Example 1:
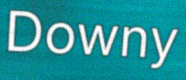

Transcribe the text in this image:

Downy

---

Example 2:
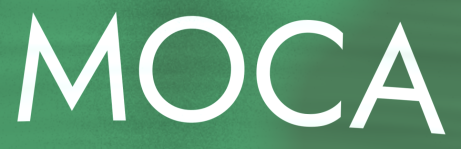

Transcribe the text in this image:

MOCA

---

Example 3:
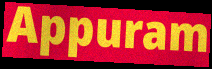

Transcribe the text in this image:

Appuram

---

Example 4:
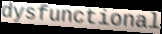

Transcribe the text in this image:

dysfunctional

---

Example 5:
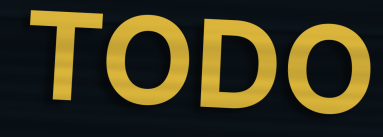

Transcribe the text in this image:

TODO